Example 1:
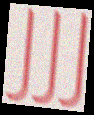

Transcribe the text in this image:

JJJ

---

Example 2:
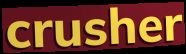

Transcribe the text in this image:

crusher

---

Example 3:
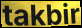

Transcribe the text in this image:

takbir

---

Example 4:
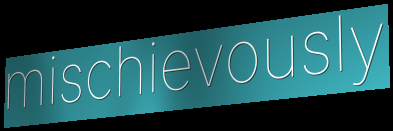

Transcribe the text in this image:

mischievously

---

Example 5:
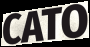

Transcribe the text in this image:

CATO